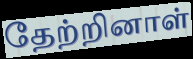
தேற்றினாள்